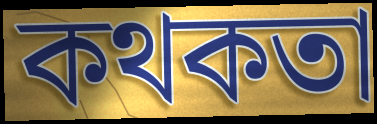
কথকতা